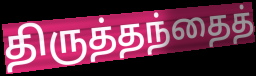
திருத்தந்தைத்